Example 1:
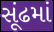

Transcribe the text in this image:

સૂંઢમાં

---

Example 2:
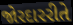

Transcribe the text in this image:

જોરદારરીતે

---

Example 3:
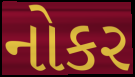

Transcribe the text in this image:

નોકર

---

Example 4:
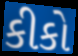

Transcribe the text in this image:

કીકો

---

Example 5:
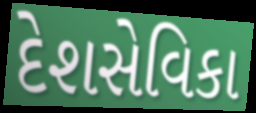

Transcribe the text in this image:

દેશસેવિકા